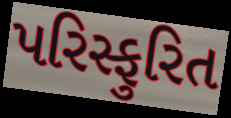
પરિસ્ફુરિત